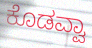
ಕೊಡವ್ವಾ